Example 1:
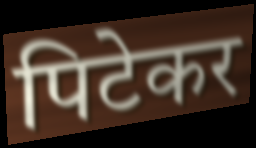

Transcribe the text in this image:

पिटेकर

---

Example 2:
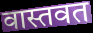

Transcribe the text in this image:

वास्‍तवत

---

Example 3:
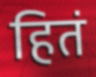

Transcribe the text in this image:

हितं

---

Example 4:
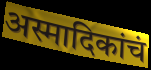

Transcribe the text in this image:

अस्मादिकांचं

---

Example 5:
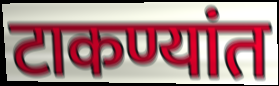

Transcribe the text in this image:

टाकण्यांत